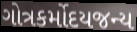
ગોત્રકર્મોદયજન્ય